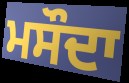
ਮਸੌਦਾ